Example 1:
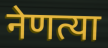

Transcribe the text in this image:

नेणत्या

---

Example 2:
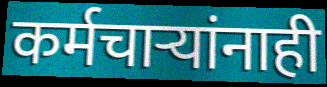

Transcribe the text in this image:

कर्मचाऱ्यांनाही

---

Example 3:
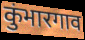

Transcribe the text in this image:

कुंभारगाव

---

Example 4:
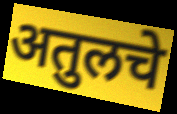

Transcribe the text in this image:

अतुलचे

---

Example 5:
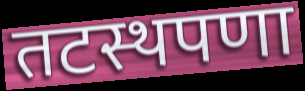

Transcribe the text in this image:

तटस्थपणा